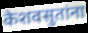
केशवसुतांना